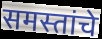
समस्तांचे